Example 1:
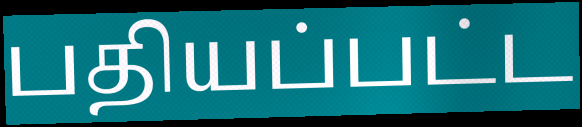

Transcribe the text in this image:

பதியப்பட்ட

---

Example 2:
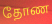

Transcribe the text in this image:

தோண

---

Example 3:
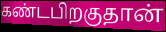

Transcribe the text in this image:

கண்டபிறகுதான்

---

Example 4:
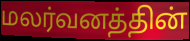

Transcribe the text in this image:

மலர்வனத்தின்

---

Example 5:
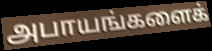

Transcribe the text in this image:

அபாயங்களைக்